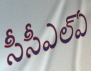
సీసీఎల్ఏ